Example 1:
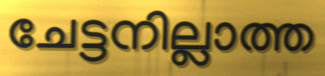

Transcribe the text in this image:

ചേട്ടനില്ലാത്ത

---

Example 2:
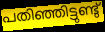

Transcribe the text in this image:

പതിഞ്ഞിട്ടുണ്ടു്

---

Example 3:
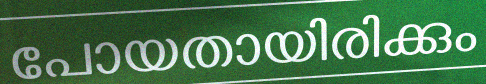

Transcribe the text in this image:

പോയതായിരിക്കും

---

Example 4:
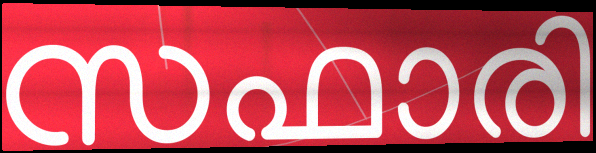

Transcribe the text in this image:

സഫാരി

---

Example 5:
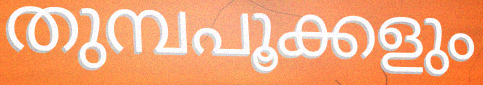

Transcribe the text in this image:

തുമ്പപൂക്കളും